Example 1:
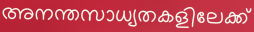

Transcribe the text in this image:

അനന്തസാധ്യതകളിലേക്ക്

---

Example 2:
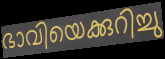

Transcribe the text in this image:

ഭാവിയെക്കുറിച്ചു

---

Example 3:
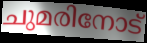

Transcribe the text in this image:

ചുമരിനോട്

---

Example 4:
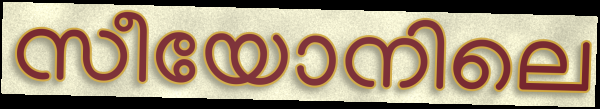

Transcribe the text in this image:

സീയോനിലെ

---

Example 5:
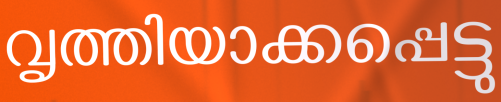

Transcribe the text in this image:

വൃത്തിയാക്കപ്പെട്ടു